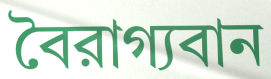
বৈরাগ্যবান